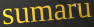
sumaru